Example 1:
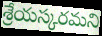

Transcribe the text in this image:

శ్రేయస్కరమని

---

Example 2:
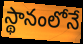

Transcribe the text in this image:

స్థానంలోనే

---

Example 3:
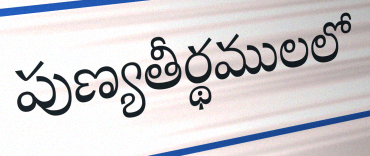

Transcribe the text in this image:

పుణ్యతీర్థములలో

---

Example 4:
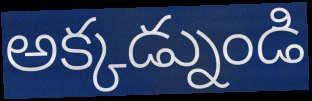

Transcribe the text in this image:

అక్కడ్నుండి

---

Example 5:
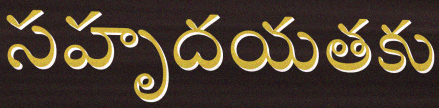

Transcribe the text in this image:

సహృదయతకు